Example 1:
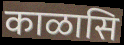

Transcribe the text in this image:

काळासि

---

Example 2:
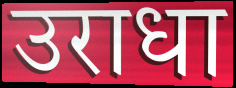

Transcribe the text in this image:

उराधा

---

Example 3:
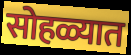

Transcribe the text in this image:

सोहळ्यात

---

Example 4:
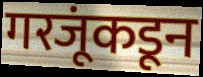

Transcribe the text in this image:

गरजूंकडून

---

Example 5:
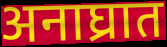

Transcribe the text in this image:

अनाघ्रात